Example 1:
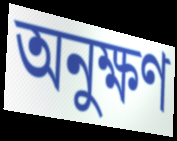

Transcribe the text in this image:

অনুক্ষণ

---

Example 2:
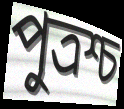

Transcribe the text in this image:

পুত্রশ্চ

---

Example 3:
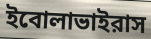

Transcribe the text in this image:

ইবোলাভাইরাস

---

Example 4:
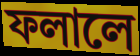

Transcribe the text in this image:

ফলালে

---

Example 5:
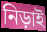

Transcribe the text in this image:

নিড়াই